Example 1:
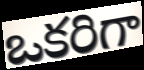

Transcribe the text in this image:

ఒకరిగా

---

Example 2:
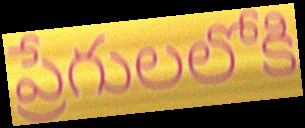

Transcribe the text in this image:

ప్రేగులలోకి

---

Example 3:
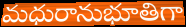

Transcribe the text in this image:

మధురానుభూతిగా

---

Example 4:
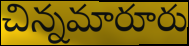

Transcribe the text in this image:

చిన్నమారూరు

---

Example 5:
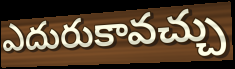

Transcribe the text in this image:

ఎదురుకావచ్చు